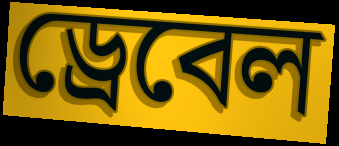
ড্রেবেল